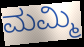
ಮಮ್ಮಿ